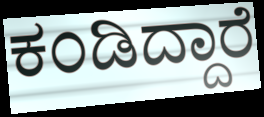
ಕಂಡಿದ್ದಾರೆ